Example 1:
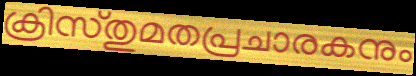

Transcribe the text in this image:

ക്രിസ്തുമതപ്രചാരകനും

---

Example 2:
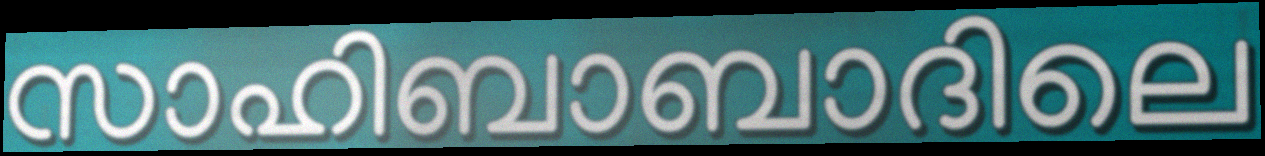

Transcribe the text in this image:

സാഹിബാബാദിലെ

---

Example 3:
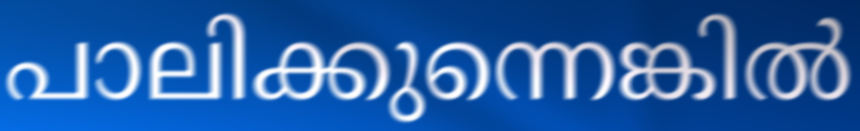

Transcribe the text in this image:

പാലിക്കുന്നെങ്കിൽ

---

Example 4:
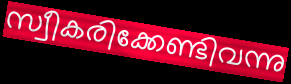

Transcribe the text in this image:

സ്വീകരിക്കേണ്ടിവന്നു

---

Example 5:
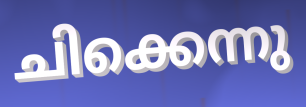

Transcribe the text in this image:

ചിക്കെന്നു